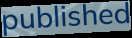
published